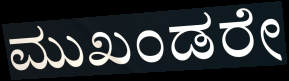
ಮುಖಂಡರೇ